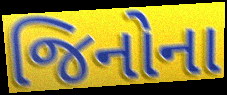
જિનોના